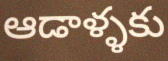
ఆడాళ్ళకు